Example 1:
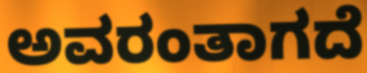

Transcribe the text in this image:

ಅವರಂತಾಗದೆ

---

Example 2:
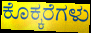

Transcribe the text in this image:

ಕೊಕ್ಕರೆಗಳು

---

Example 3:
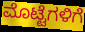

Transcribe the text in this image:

ಮೊಟ್ಟೆಗಳಿಗೆ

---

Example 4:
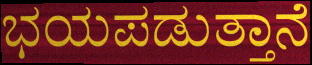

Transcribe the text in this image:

ಭಯಪಡುತ್ತಾನೆ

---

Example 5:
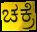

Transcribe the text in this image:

ಚಕ್ರೆ